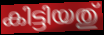
കിട്ടിയതു്